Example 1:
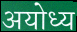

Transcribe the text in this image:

अयोध्य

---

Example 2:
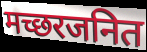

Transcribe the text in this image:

मच्छरजनित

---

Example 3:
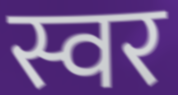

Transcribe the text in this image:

स्‍वर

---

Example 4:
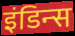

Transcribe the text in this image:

इंडिन्स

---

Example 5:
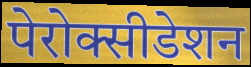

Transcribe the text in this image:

पेरोक्सीडेशन